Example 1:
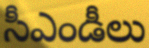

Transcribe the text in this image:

సీఎండీలు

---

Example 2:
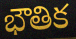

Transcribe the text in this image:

భౌతిక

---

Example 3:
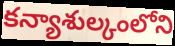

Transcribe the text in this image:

కన్యాశుల్కంలోని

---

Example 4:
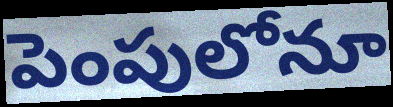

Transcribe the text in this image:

పెంపులోనూ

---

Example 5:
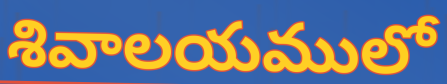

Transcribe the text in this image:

శివాలయములో